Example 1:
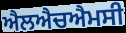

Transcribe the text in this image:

ਐਲਐਚਐਮਸੀ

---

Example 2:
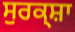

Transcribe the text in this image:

ਸੁਰਕ੍ਸ਼ਾ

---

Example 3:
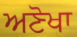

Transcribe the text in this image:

ਅਣੋਖਾ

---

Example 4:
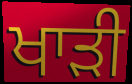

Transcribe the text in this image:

ਖਾਡ਼ੀ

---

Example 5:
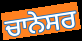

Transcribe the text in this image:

ਚਾਨੇਸਰ